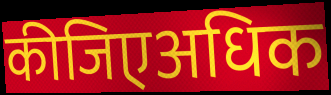
कीजिएअधिक